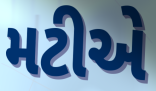
મટીએ